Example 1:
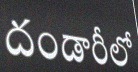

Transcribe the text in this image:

దండారీలో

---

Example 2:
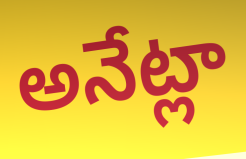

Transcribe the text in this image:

అనేట్లా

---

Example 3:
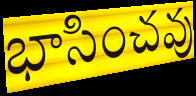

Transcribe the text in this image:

భాసించవు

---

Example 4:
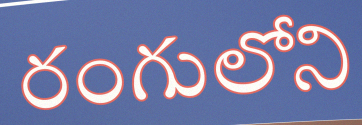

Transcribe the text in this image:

రంగులోని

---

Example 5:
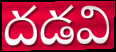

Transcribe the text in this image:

దడవి